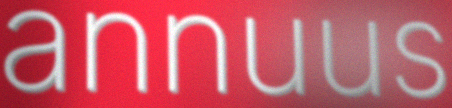
annuus